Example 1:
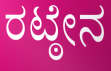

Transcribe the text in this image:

ರಟ್ಠೇನ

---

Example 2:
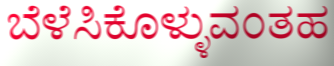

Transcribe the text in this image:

ಬೆಳೆಸಿಕೊಳ್ಳುವಂತಹ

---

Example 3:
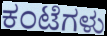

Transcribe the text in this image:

ಕಂಟೆಗಳು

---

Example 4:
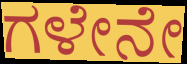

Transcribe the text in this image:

ಗಳೇನೇ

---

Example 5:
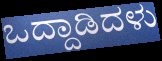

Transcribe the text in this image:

ಒದ್ದಾಡಿದಳು